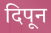
दिपून